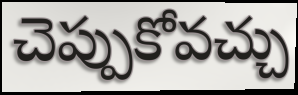
చెప్పుకోవచ్చు